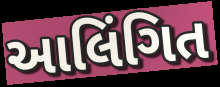
આલિંગિત